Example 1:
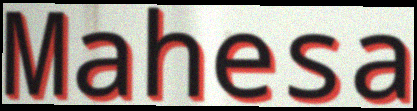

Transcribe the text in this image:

Mahesa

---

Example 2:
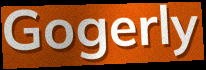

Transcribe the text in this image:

Gogerly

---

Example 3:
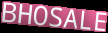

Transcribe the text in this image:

BHOSALE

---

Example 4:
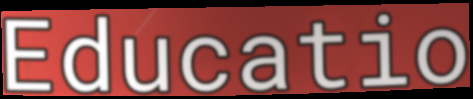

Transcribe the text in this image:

Educatio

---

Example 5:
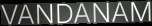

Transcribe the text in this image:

VANDANAM